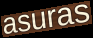
asuras